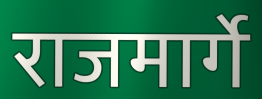
राजमार्गे